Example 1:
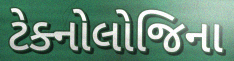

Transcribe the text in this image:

ટેક્નોલોજિના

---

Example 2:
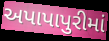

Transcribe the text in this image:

અપાપાપુરીમાં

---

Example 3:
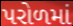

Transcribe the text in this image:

પરોળમાં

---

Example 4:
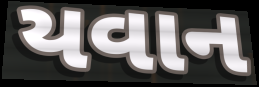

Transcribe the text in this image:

યવાન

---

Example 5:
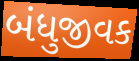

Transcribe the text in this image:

બંધુજીવક